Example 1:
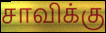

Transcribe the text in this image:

சாவிக்கு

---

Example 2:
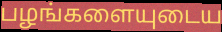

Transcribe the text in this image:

பழங்களையுடைய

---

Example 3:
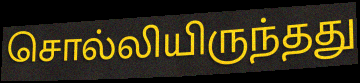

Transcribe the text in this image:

சொல்லியிருந்தது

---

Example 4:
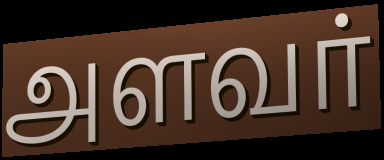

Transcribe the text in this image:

அளவர்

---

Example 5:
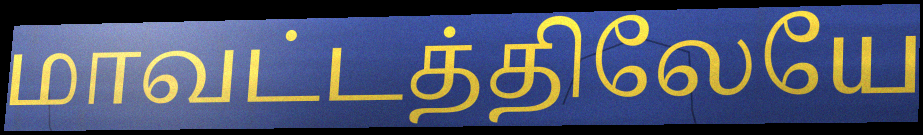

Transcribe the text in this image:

மாவட்டத்திலேயே